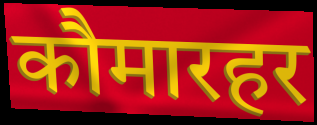
कौमारहर